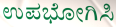
ಉಪಭೋಗಿಸಿ